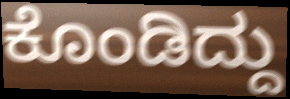
ಕೊಂಡಿದ್ದು